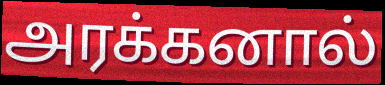
அரக்கனால்